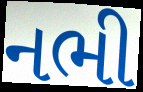
નભી